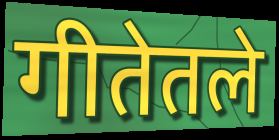
गीतेतले